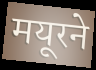
मयूरने